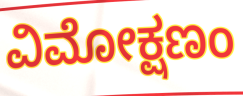
ವಿಮೋಕ್ಷಣಂ